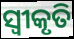
ସ୍ୱୀକୃତି